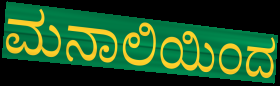
ಮನಾಲಿಯಿಂದ